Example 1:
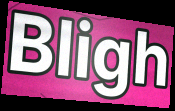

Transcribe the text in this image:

Bligh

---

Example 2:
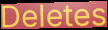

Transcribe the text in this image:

Deletes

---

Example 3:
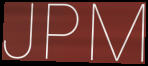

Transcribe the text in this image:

JPM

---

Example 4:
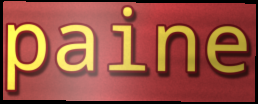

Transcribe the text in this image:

paine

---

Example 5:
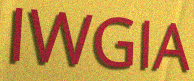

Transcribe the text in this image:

IWGIA